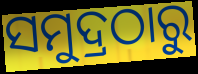
ସମୁଦ୍ରଠାରୁ